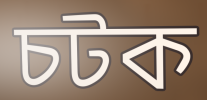
চটক